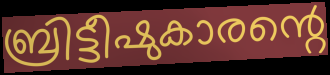
ബ്രിട്ടീഷുകാരന്റെ